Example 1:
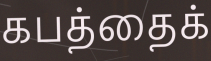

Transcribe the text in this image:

கபத்தைக்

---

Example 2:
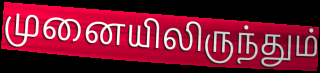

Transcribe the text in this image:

முனையிலிருந்தும்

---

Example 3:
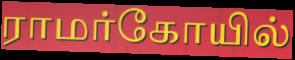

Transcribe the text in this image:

ராமர்கோயில்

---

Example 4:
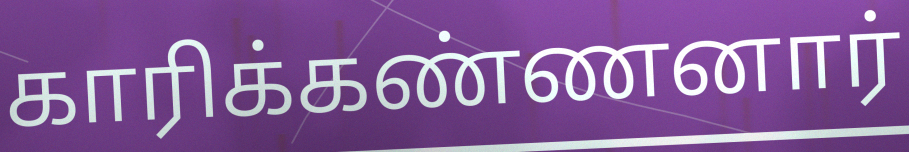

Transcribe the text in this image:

காரிக்கண்ணனார்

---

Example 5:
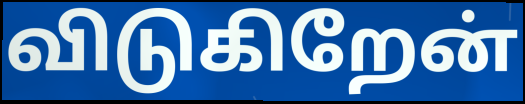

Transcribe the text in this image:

விடுகிறேன்